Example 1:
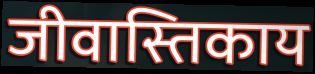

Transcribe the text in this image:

जीवास्तिकाय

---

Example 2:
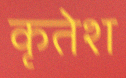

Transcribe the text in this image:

कृतेश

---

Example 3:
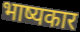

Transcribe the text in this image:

भाष्यकार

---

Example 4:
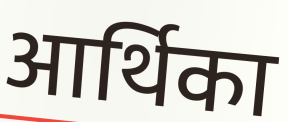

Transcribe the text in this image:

आर्थिका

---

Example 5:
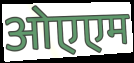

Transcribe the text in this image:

ओएएम